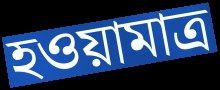
হওয়ামাত্র